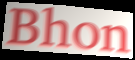
Bhon